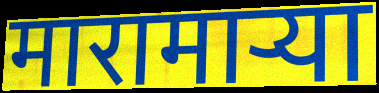
मारामाऱ्या